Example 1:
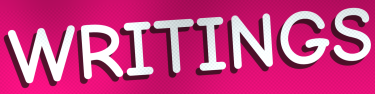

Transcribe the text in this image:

WRITINGS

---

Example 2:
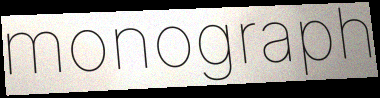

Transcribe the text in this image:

monograph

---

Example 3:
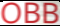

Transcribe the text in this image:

OBB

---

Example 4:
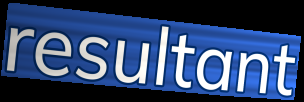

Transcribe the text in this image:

resultant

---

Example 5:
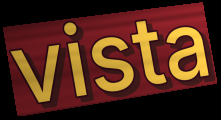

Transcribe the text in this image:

vista